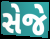
સેજે